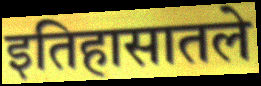
इतिहासातले